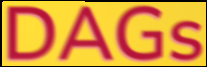
DAGs